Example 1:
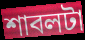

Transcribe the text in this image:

শাবলটা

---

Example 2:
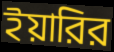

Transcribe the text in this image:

ইয়ারির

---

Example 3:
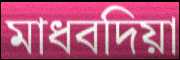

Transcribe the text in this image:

মাধবদিয়া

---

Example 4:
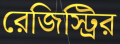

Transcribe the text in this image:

রেজিস্ট্রির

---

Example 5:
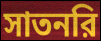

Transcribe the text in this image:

সাতনরি